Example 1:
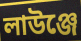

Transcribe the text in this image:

লাউঞ্জে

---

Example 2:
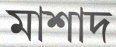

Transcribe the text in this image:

মাশাদ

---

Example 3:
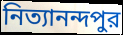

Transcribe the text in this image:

নিত্যানন্দপুর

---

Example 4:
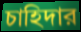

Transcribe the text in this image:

চাহিদার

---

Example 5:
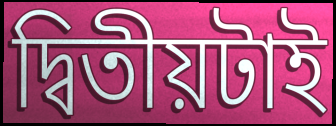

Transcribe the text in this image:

দ্বিতীয়টাই